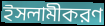
ইসলামীকরণ